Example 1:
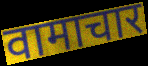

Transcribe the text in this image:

वामाचार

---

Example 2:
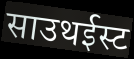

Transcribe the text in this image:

साउथईस्ट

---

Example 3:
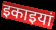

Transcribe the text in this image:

इकाइयां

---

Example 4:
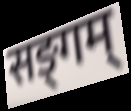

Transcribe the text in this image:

सङ्गम्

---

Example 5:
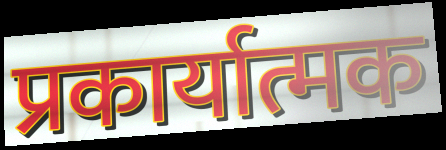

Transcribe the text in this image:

प्रकार्यात्मक